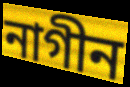
নাগীন